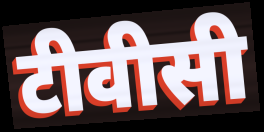
टीवीसी